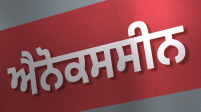
ਐਨੋਕਸਸੀਨ